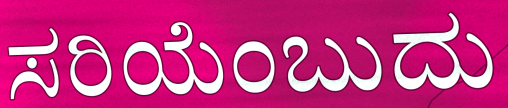
ಸರಿಯೆಂಬುದು